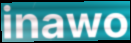
inawo